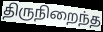
திருநிறைந்த